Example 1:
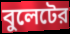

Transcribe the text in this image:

বুলেটের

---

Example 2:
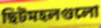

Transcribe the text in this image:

ছিটমহলগুলো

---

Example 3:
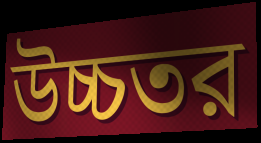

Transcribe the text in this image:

উচ্চতর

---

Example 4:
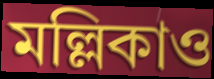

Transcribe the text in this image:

মল্লিকাও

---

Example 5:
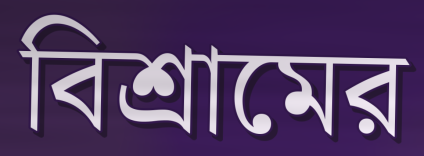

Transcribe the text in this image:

বিশ্রামের